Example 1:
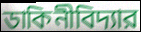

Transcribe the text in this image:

ডাকিনীবিদ্যার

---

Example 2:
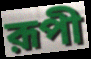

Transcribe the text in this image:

রূপী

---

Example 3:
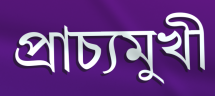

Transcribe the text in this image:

প্রাচ্যমুখী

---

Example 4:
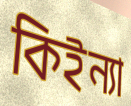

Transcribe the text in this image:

কিইন্যা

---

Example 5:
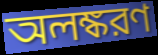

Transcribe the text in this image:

অলঙ্করণ